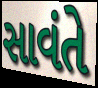
સાવંતે